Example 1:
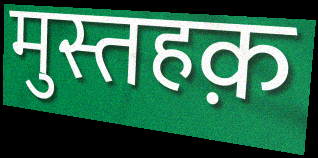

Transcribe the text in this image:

मुस्तहक़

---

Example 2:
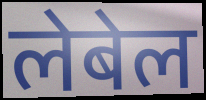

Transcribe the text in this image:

लेबेल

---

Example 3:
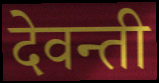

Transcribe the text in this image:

देवन्ती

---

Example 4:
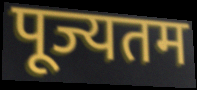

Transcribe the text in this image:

पूज्यतम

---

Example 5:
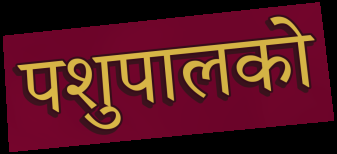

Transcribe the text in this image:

पशुपालको